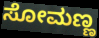
ಸೋಮಣ್ಣ